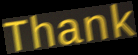
Thank